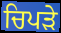
ਚਿਪੜੇ